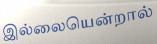
இல்லையென்றால்